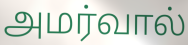
அமர்வால்